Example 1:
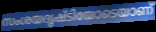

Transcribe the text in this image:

സംശയദൃഷ്ടിയോടെയാണ്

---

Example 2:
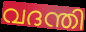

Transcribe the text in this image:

വദന്തി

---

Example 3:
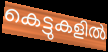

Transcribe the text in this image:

കെട്ടുകളിൽ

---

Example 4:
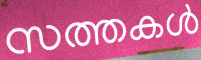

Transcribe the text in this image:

സത്തകൾ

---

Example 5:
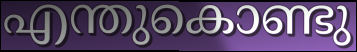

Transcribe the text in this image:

എന്തുകൊണ്ടു